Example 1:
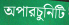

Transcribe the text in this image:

অপারচুনিটি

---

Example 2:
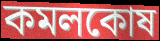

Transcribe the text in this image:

কমলকোষ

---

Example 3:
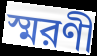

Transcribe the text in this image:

স্মরণী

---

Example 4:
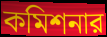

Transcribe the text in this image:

কমিশনার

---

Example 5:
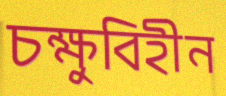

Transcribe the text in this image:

চক্ষুবিহীন